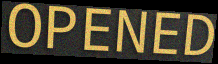
OPENED